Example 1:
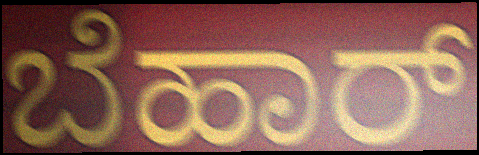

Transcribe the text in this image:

ಬೆಹಾರ್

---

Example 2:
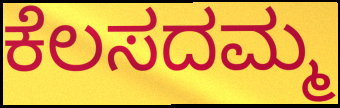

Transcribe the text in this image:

ಕೆಲಸದಮ್ಮ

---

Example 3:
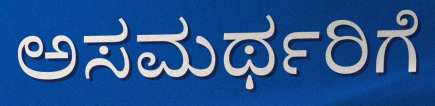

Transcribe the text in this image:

ಅಸಮರ್ಥರಿಗೆ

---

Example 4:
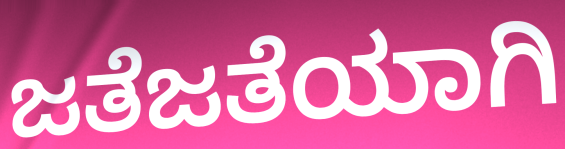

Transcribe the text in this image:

ಜತೆಜತೆಯಾಗಿ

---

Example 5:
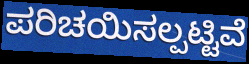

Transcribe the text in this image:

ಪರಿಚಯಿಸಲ್ಪಟ್ಟಿವೆ